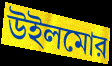
উইলমোর